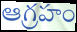
ఆగ్రహం